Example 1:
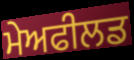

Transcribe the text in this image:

ਮੇਅਫੀਲਡ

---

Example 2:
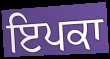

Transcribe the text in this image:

ਇਪਕਾ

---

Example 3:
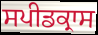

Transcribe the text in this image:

ਸਪੀਡਕ੍ਰਾਸ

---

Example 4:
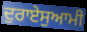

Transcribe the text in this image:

ਦੁਰਾਏਸੁਆਮੀ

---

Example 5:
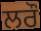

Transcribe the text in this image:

ਲਰੌ